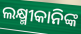
ଲକ୍ଷ୍ମୀକାନିଙ୍କ